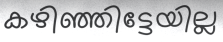
കഴിഞ്ഞിട്ടേയില്ല